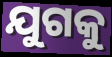
ଯୁଗକୁ